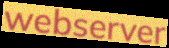
webserver